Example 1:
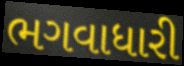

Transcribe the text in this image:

ભગવાધારી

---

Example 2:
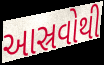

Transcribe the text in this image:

આસ્રવોથી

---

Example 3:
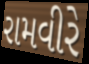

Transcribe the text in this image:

રામવીરે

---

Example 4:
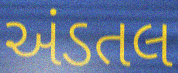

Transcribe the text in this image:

અંડતલ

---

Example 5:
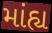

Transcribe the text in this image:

માંહ્ય